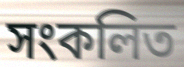
সংকলিত